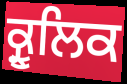
ਕ੍ਰੂਲਿਕ